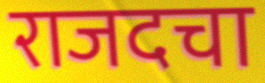
राजदचा